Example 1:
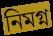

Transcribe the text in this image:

নিমগ্ন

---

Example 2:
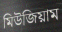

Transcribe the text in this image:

মিউজিয়াম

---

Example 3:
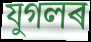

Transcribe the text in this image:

যুগলৰ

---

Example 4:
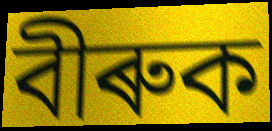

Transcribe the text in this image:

বীৰুক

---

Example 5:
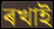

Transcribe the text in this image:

ৰখাই